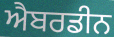
ਐਬਰਡੀਨ